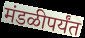
मंडळीपर्यंत